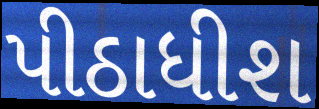
પીઠાધીશ